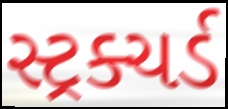
સ્ટ્રક્ચર્ડ